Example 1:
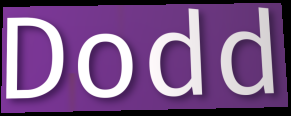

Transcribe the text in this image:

Dodd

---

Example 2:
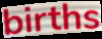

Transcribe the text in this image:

births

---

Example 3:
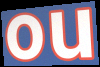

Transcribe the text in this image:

ou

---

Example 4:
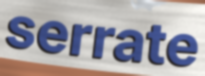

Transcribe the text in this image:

serrate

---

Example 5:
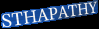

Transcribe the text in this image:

STHAPATHY